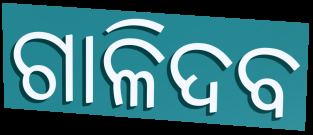
ଗାଳିଦବ